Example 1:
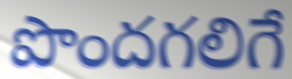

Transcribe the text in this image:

పొందగలిగే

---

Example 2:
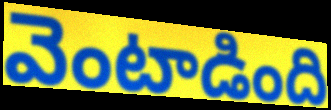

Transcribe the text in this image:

వెంటాడింది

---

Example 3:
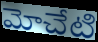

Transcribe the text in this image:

మోచేటి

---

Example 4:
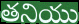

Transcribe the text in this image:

తనియు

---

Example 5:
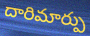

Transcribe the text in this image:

దారిమార్పు